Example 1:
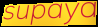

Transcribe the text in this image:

supaya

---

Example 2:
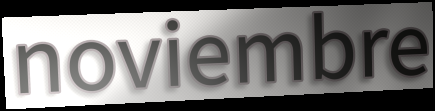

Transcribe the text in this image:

noviembre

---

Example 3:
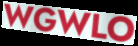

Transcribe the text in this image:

WGWLO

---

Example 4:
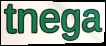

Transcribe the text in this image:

tnega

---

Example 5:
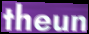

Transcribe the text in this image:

theun